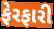
ફેરફારી